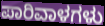
ಪಾರಿವಾಳಗಳು